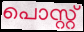
പൊസ്റ്റ്